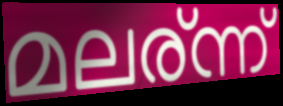
മലര്ന്ന്